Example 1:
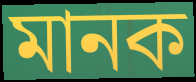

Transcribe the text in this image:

মানক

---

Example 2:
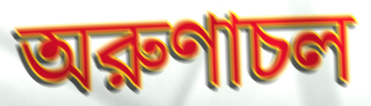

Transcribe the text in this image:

অরুণাচল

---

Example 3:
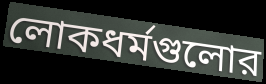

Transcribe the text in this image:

লোকধর্মগুলোর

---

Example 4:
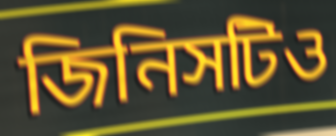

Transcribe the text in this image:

জিনিসটিও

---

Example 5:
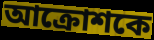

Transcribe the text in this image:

আক্রোশকে